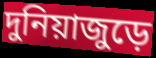
দুনিয়াজুড়ে